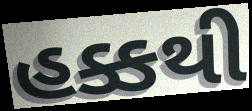
હક્કથી